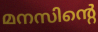
മനസിന്റെ